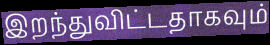
இறந்துவிட்டதாகவும்